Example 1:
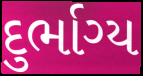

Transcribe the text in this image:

દુર્ભાગ્ય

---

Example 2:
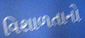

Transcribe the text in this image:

વિશાળતાનો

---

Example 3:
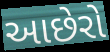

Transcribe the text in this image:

આછેરો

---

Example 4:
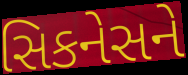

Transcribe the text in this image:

સિકનેસને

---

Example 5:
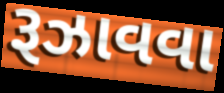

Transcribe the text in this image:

રૂઝાવવા